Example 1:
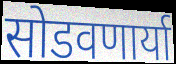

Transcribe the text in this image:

सोडवणार्या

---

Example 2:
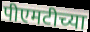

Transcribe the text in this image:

पीएमटीच्या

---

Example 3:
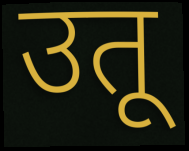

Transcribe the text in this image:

उतू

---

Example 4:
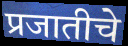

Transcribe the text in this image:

प्रजातीचे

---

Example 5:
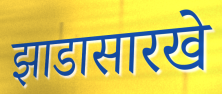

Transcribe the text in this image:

झाडासारखे